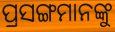
ପ୍ରସଙ୍ଗମାନଙ୍କୁ